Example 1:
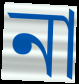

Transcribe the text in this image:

না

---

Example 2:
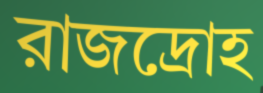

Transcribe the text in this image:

রাজদ্রোহ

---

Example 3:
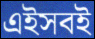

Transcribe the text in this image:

এইসবই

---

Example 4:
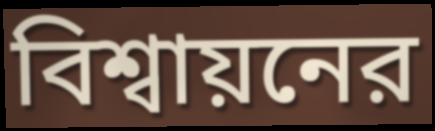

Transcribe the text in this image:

বিশ্বায়নের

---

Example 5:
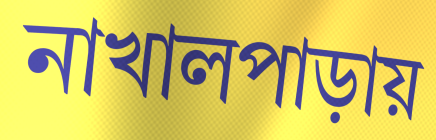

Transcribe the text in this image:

নাখালপাড়ায়